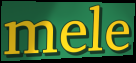
mele